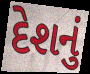
દેશનું